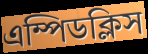
এম্পিডক্লিস